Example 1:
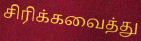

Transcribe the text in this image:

சிரிக்கவைத்து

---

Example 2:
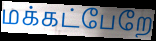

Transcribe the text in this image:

மக்கட்பேறே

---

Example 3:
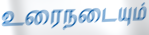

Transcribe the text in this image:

உரைநடையும்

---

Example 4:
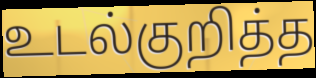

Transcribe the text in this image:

உடல்குறித்த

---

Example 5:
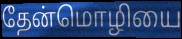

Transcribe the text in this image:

தேன்மொழியை